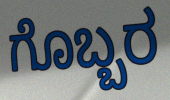
ಗೊಬ್ಬರ